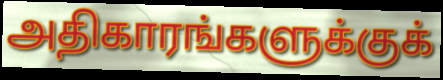
அதிகாரங்களுக்குக்